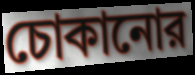
চোকানোর